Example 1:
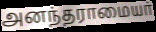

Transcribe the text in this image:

அனந்தராமையர்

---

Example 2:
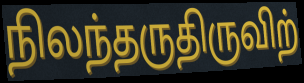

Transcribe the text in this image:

நிலந்தருதிருவிற்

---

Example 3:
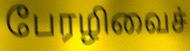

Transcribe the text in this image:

பேரழிவைச்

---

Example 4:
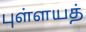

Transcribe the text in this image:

புள்ளயத்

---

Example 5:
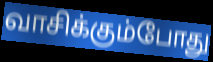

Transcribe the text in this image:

வாசிக்கும்போது